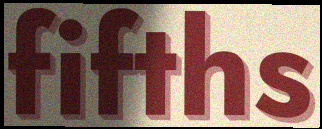
fifths